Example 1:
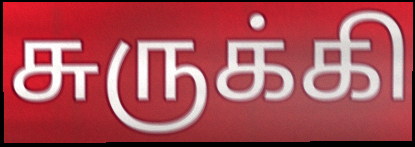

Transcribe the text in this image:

சுருக்கி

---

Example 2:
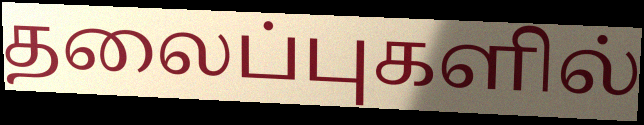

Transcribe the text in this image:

தலைப்புகளில்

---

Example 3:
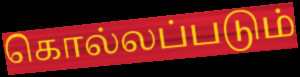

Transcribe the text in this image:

கொல்லப்படும்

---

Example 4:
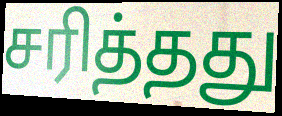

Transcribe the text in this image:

சரித்தது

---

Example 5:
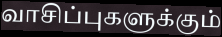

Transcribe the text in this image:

வாசிப்புகளுக்கும்